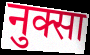
नुक्सा